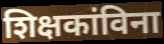
शिक्षकांविना